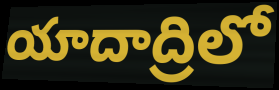
యాదాద్రిలో